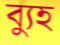
ব্যুহ